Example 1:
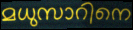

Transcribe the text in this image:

മധുസാറിനെ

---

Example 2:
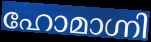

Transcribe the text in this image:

ഹോമാഗ്നി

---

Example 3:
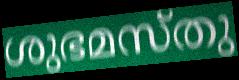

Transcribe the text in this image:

ശുഭമസ്തു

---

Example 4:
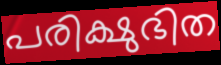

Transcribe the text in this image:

പരിക്ഷുഭിത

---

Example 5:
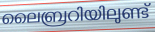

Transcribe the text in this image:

ലൈബ്രറിയിലുണ്ട്